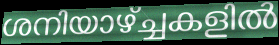
ശനിയാഴ്ച്ചകളിൽ